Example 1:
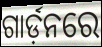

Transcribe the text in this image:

ଗାର୍ଡ଼ନରେ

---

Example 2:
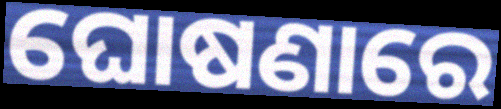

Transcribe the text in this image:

ଘୋଷଣାରେ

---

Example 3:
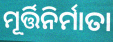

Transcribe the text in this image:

ମୂର୍ତ୍ତିନିର୍ମାତା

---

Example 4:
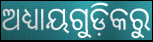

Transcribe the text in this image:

ଅଧ୍ୟାୟଗୁଡ଼ିକରୁ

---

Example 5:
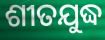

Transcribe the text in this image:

ଶୀତଯୁଦ୍ଧ